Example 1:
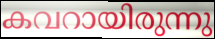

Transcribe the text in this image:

കവറായിരുന്നു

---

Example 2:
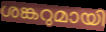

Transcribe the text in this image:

ശങ്കറുമായി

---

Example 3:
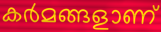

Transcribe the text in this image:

കർമങ്ങളാണ്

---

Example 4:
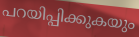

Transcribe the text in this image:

പറയിപ്പിക്കുകയും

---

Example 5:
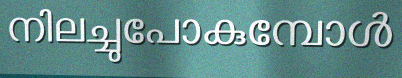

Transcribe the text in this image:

നിലച്ചുപോകുമ്പോൾ